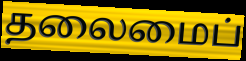
தலைமைப்